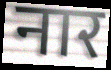
नार